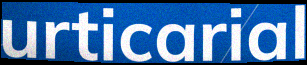
urticarial